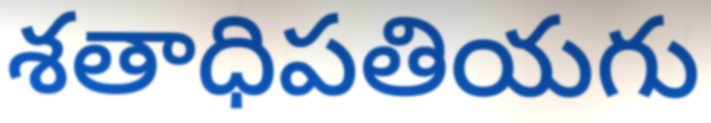
శతాధిపతియగు